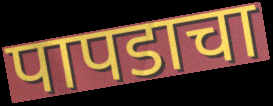
पापडाचा